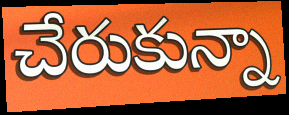
చేరుకున్నా